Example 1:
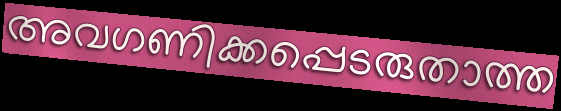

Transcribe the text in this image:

അവഗണിക്കപ്പെടരുതാത്ത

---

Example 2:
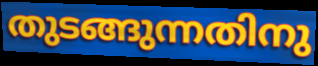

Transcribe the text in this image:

തുടങ്ങുന്നതിനു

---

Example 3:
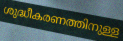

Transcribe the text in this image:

ശുദ്ധീകരണത്തിനുള്ള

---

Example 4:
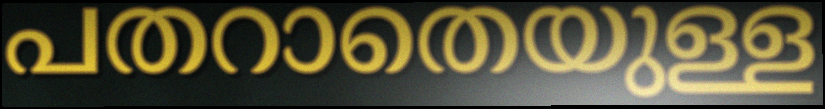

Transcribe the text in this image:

പതറാതെയുള്ള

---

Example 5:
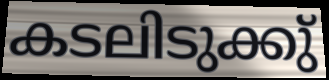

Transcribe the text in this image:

കടലിടുക്കു്